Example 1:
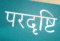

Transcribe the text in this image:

परदृष्टि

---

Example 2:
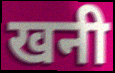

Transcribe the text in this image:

खनी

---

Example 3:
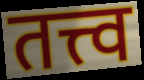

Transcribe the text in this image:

तत्त्व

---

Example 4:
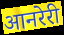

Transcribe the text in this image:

आनरेरी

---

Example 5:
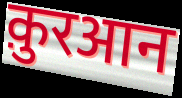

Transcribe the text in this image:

क़ुरआन